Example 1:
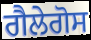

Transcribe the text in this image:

ਗੈਲੇਗੋਸ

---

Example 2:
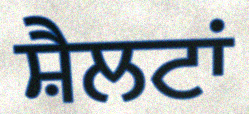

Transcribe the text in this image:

ਸ਼ੈਲਟਾਂ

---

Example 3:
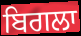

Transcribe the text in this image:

ਬਿਗਲਾ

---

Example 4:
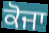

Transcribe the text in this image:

ਕੋਜਾ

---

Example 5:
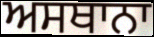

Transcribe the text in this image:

ਅਸਥਾਨਾ